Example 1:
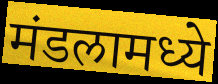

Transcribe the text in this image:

मंडलामध्ये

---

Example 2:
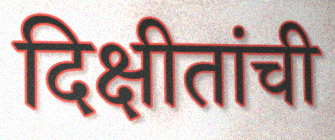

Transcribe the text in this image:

दिक्षीतांची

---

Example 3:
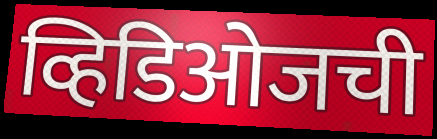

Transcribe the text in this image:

व्हिडिओजची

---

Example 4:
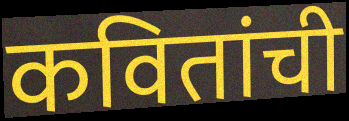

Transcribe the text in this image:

कवितांची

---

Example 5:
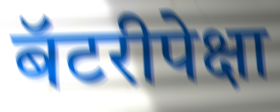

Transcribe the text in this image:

बॅटरीपेक्षा